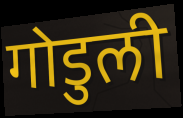
गोडुली